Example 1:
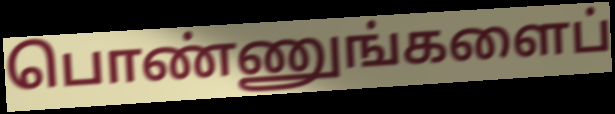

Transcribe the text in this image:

பொண்ணுங்களைப்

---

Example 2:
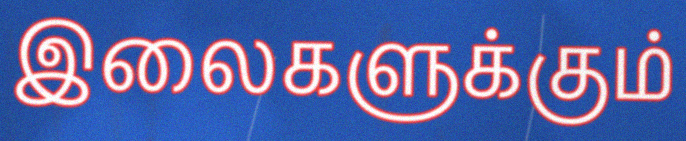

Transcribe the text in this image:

இலைகளுக்கும்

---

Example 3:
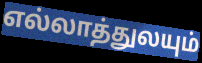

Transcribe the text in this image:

எல்லாத்துலயும்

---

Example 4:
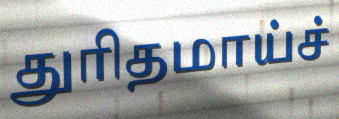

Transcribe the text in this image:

துரிதமாய்ச்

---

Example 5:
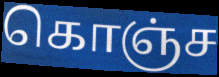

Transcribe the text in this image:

கொஞ்ச